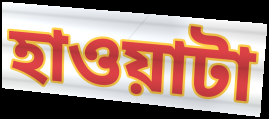
হাওয়াটা